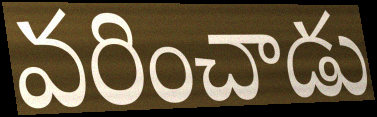
వరించాడు